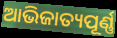
ଆଭିଜାତ୍ୟପୂର୍ଣ୍ଣ